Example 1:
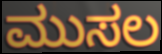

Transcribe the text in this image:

ಮುಸಲ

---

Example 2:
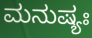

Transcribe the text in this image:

ಮನುಷ್ಯಃ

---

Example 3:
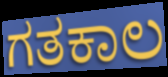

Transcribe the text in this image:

ಗತಕಾಲ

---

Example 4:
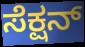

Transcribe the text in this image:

ಸೆಕ್ಷನ್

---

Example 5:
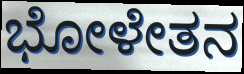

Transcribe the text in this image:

ಭೋಳೇತನ